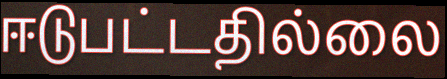
ஈடுபட்டதில்லை